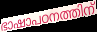
ഭാഷാപഠനത്തിന്